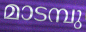
മാടമ്പു